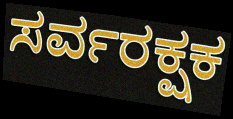
ಸರ್ವರಕ್ಷಕ